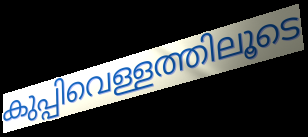
കുപ്പിവെള്ളത്തിലൂടെ